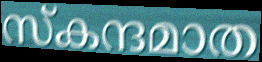
സ്കന്ദമാത